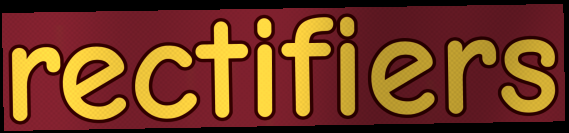
rectifiers